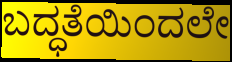
ಬದ್ಧತೆಯಿಂದಲೇ